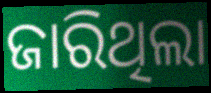
ଜାରିଥିଲା